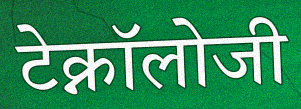
टेक्नॉलोजी